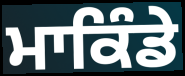
ਮਾਕਿੰਡੇ